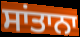
ਸਾਂਤਾਨਾ